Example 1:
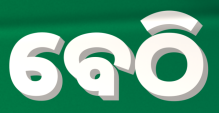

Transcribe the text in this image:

ବେଠି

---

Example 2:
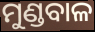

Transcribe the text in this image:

ମୁଣ୍ଡବାଳ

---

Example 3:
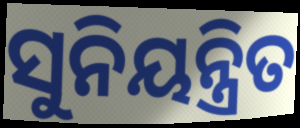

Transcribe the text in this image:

ସୁନିୟନ୍ତ୍ରିତ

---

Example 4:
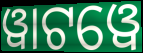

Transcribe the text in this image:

ୱାଟୱେ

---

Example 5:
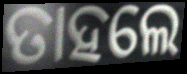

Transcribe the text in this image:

ତାହଲେ